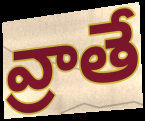
వ్రాతే